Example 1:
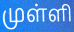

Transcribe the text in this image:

முள்ளி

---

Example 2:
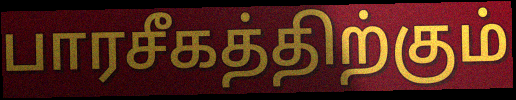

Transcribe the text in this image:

பாரசீகத்திற்கும்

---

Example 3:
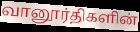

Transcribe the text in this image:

வானூர்திகளின்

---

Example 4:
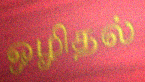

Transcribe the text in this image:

ஒழிதல்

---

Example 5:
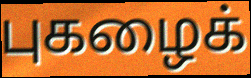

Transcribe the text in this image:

புகழைக்